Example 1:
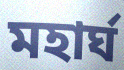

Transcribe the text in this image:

মহার্ঘ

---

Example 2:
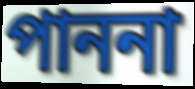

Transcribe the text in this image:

পাননা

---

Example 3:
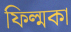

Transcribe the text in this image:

ফিল্মকা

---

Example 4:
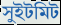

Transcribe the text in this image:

সুইটমিট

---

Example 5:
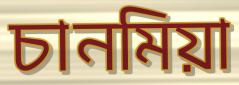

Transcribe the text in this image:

চানমিয়া